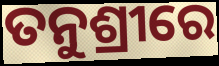
ତନୁଶ୍ରୀରେ